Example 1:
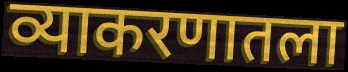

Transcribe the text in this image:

व्याकरणातला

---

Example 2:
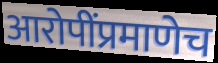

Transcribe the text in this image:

आरोपींप्रमाणेच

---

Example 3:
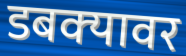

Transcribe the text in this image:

डबक्यावर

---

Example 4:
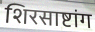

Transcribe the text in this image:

शिरसाष्टांग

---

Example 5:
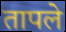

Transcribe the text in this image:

तापले